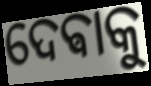
ଦେଵାକୁ